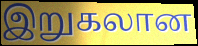
இறுகலான